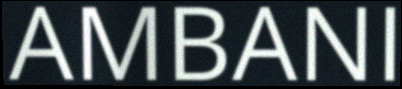
AMBANI